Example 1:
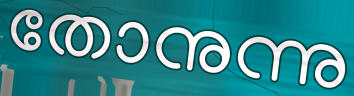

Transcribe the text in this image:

തോനുന്നു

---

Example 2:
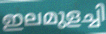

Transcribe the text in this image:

ഇലമുളച്ചി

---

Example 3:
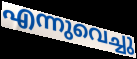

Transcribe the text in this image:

എന്നുവെച്ചു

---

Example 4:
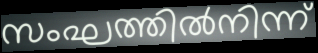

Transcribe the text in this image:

സംഘത്തിൽനിന്ന്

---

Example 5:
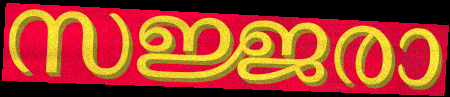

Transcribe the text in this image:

സജ്ജരാ